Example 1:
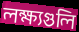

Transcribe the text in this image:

লক্ষ্যগুলি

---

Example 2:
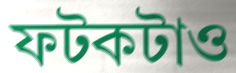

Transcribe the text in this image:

ফটকটাও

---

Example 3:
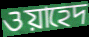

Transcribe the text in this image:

ওয়াহেদ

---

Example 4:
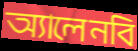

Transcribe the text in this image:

অ্যালেনবি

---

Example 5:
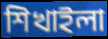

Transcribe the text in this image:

শিখাইলা